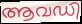
ആവഡി